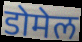
डोमेल